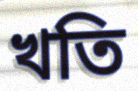
খতি